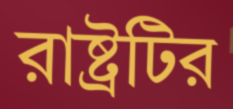
রাষ্ট্রটির